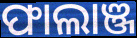
ଫାଲାଞ୍ଜ